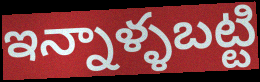
ఇన్నాళ్ళబట్టి